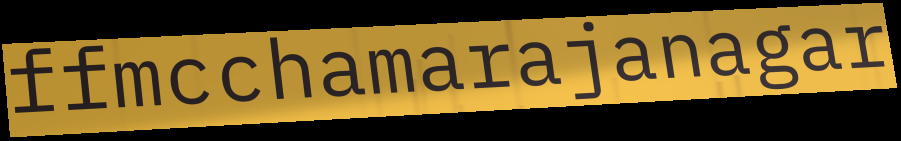
ffmcchamarajanagar